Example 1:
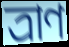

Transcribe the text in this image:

ত্রাণ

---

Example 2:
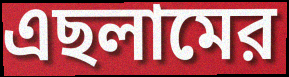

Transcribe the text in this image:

এছলামের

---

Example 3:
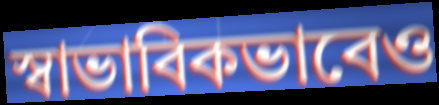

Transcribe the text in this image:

স্বাভাবিকভাবেও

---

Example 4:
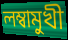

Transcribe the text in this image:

লম্বামুখী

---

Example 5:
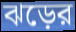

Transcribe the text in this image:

ঝড়ের